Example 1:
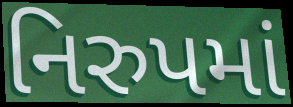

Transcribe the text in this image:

નિરુપમાં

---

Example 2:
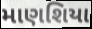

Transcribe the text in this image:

માણશિયા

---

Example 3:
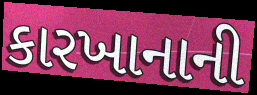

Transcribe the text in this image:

કારખાનાની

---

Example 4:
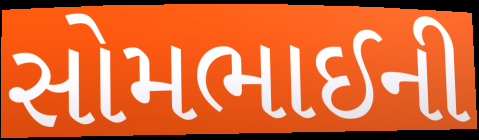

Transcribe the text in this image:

સોમભાઈની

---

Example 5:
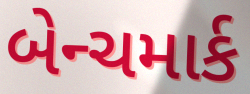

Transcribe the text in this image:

બેન્ચમાર્ક